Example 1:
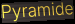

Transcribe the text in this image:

Pyramide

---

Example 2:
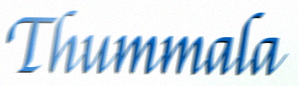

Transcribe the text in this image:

Thummala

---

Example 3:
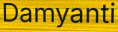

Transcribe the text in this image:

Damyanti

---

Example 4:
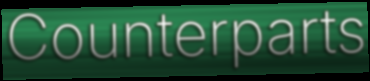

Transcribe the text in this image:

Counterparts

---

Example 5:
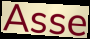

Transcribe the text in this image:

Asse